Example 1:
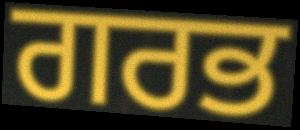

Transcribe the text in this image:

ਗਰਭ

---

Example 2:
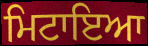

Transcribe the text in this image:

ਮਿਟਾਇਆ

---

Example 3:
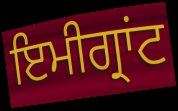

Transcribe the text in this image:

ਇਮੀਗ੍ਰਾਂਟ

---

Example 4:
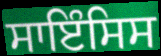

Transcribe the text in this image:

ਸਾਇੰਸਿਸ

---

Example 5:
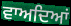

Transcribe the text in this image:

ਵਾਅਦਿਆਂ